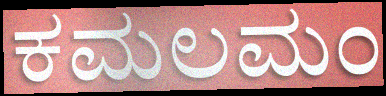
ಕಮಲಮಂ